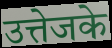
उत्तेजके